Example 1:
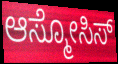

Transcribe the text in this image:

ಆಸ್ಮೋಸಿಸ್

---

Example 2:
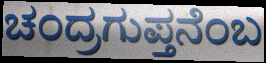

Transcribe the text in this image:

ಚಂದ್ರಗುಪ್ತನೆಂಬ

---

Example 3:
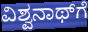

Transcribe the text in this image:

ವಿಶ್ವನಾಥ್‌ಗೆ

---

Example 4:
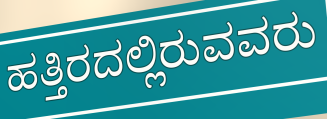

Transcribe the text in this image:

ಹತ್ತಿರದಲ್ಲಿರುವವರು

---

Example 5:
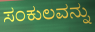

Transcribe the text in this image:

ಸಂಕುಲವನ್ನು